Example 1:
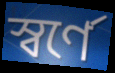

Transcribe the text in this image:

স্বর্ণে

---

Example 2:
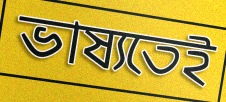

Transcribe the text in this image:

ভাষ্যতেই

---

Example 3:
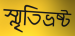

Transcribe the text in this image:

স্মৃতিভ্রষ্ট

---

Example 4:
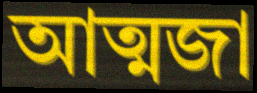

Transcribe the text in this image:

আত্মজা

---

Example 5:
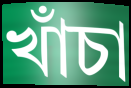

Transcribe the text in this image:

খাঁচা